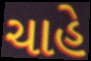
ચાહે